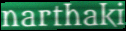
narthaki